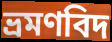
ভ্রমণবিদ